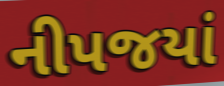
નીપજયાં